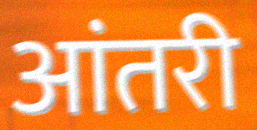
आंतरी